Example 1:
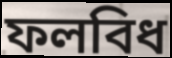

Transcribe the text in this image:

ফলবিধ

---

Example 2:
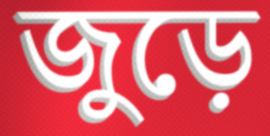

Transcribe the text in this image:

জুড়ে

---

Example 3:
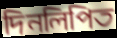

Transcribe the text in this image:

দিনলিপিত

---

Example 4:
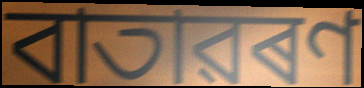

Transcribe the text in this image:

বাতাৱৰণ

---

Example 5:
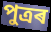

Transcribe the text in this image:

পুত্ৰৰ